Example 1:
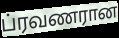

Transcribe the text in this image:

ப்ரவணரான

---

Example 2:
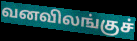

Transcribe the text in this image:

வனவிலங்குச்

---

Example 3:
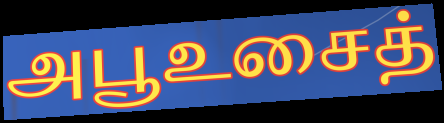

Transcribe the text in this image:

அபூஉசைத்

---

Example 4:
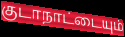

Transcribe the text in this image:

குடாநாட்டையும்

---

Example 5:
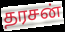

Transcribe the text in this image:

தரசன்